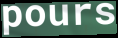
pours